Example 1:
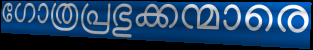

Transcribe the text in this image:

ഗോത്രപ്രഭുക്കന്മാരെ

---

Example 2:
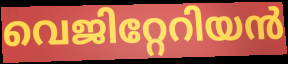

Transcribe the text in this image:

വെജിറ്റേറിയൻ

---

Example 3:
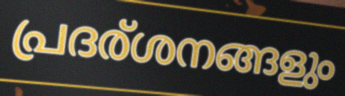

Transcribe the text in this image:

പ്രദര്ശനങ്ങളും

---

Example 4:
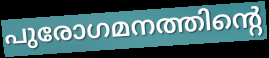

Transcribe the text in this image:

പുരോഗമനത്തിന്റെ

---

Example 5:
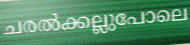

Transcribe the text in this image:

ചരൽക്കല്ലുപോലെ